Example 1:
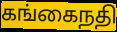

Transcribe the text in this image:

கங்கைநதி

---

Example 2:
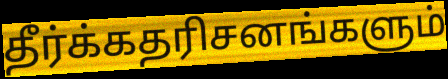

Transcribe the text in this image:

தீர்க்கதரிசனங்களும்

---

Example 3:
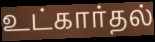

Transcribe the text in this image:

உட்கார்தல்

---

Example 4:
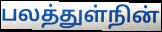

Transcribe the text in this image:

பலத்துள்நின்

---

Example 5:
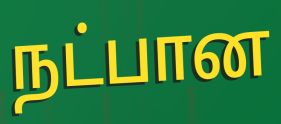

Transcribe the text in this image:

நட்பான